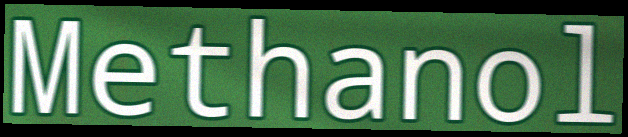
Methanol